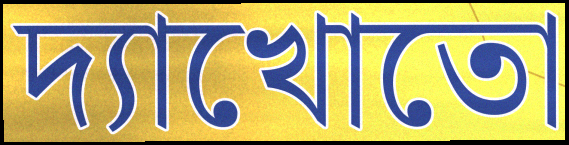
দ্যাখোতো